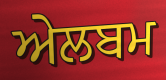
ਅੇਲਬਮ